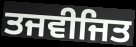
ਤਜਵੀਜਿਤ